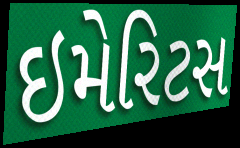
ઇમેરિટસ